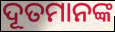
ଦୂତମାନଙ୍କ